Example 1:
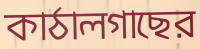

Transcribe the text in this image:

কাঠালগাছের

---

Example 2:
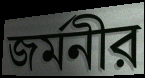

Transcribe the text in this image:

জর্মনীর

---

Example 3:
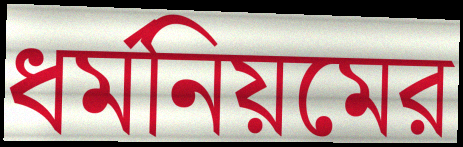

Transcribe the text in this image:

ধর্মনিয়মের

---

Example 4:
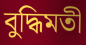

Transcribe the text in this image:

বুদ্ধিমতী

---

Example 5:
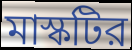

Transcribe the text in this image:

মাস্কটির